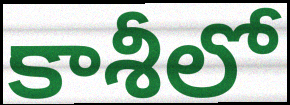
కాశీలో